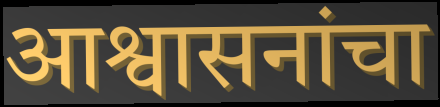
आश्वासनांचा